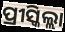
ପ୍ରୀସ୍କିଲ୍ଲା